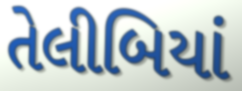
તેલીબિયાં